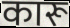
कारू